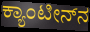
ಕ್ಯಾಂಟೀನ್‌ನ